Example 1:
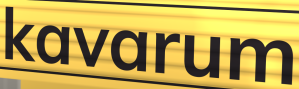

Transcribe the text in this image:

kavarum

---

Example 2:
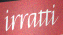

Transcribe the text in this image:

irratti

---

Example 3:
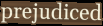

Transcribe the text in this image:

prejudiced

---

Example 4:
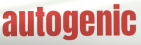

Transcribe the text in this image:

autogenic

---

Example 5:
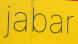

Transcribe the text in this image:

jabar